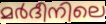
മർദീനിലെ